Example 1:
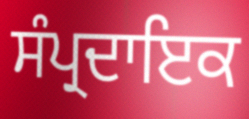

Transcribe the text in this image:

ਸੰਪ੍ਰਦਾਇਕ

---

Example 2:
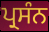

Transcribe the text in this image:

ਪ੍ਰਸੰਨ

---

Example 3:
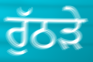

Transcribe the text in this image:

ਰੁੱਠੜੇ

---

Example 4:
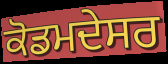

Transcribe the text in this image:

ਕੋਡਮਦੇਸਰ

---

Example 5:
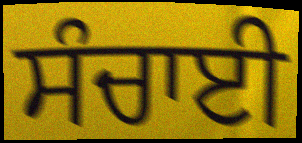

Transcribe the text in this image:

ਸੰਚਾਈ